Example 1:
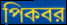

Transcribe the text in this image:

পিকবর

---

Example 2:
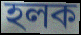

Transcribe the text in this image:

হলক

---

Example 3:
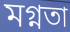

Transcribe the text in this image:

মগ্নতা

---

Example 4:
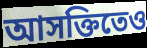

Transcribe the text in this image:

আসক্তিতেও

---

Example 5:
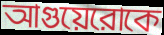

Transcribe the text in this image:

আগুয়েরোকে